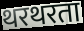
थरथरता